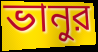
ভানুর